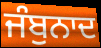
ਜੰਬੁਨਾਦ